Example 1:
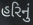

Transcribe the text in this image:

હરિનું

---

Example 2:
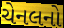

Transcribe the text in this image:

ચેનલનો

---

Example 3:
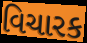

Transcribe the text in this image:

વિચારક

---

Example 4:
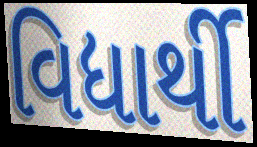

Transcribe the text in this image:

વિદ્યાર્થી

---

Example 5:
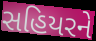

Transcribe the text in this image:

સહિયરને